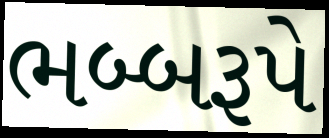
ભબ્બરૂપે